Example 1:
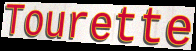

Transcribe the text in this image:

Tourette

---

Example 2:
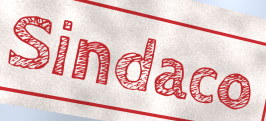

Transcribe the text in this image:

Sindaco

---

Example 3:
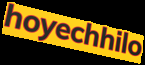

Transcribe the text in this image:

hoyechhilo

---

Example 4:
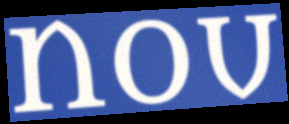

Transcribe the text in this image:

nou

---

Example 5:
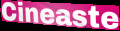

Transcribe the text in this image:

Cineaste